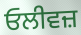
ਓਲੀਵਜ਼